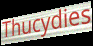
Thucydies